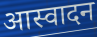
आस्वादन